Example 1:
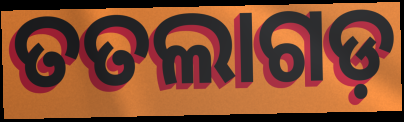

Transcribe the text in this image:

ତତଲାଗଡ଼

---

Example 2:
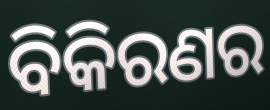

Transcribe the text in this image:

ବିକିରଣର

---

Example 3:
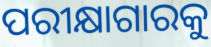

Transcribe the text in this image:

ପରୀକ୍ଷାଗାରକୁ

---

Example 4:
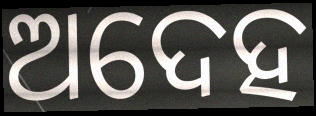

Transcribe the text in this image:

ଅଦେହ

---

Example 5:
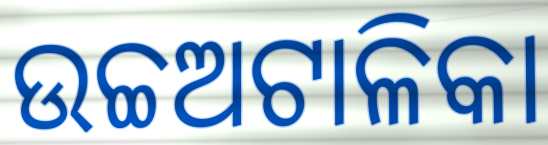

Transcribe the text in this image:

ଉଚ୍ଚଅଟାଳିକା